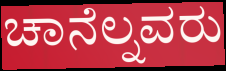
ಚಾನೆಲ್ನವರು